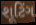
શૂટિંગ